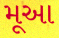
મૂઆ